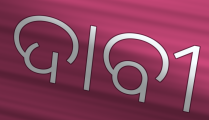
ଦାବୀ